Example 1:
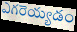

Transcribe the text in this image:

ఎగరెయ్యడం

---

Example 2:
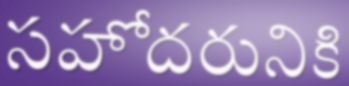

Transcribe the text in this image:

సహోదరునికి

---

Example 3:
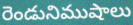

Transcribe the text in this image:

రెండునిముషాలు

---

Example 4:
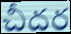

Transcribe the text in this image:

చీదర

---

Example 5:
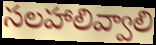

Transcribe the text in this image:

సలహాలివ్వాలి